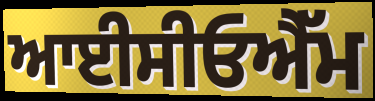
ਆਈਸੀਓਐੱਮ